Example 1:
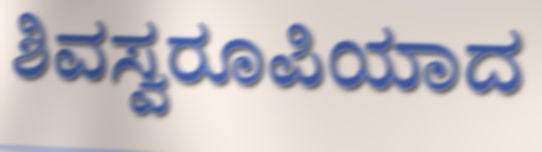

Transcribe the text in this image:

ಶಿವಸ್ವರೂಪಿಯಾದ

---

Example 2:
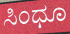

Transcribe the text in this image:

ಸಿಂಧೂ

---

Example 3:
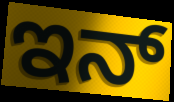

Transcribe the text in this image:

ಇನ್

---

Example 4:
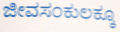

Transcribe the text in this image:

ಜೀವಸಂಕುಲಕ್ಕೂ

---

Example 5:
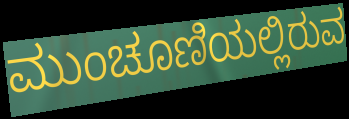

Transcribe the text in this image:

ಮುಂಚೂಣಿಯಲ್ಲಿರುವ